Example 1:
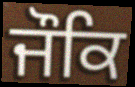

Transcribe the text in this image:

ਜੌਕਿ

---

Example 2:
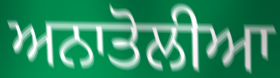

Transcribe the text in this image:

ਅਨਾਤੋਲੀਆ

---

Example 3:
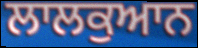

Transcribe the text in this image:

ਲਾਲਕੁਆਨ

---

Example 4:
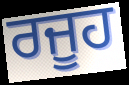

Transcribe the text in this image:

ਰਜੂਹ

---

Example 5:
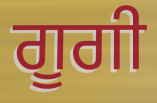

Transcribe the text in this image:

ਗੂਗੀ